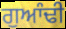
ਗੁਆੰਢੀ